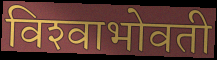
विश्वाभोवती